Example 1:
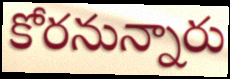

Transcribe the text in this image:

కోరనున్నారు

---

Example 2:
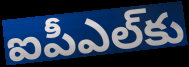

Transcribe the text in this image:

ఐపీఎల్‌కు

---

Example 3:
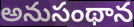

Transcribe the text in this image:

అనుసంథాన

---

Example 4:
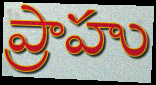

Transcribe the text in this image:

ప్రాహు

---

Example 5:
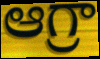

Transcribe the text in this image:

ఆగ్రా